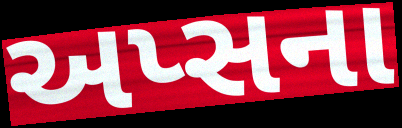
અપ્સના